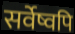
सर्वेष्वपि